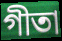
গীতা